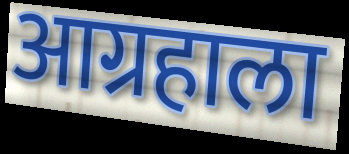
आग्रहाला